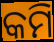
କମି